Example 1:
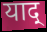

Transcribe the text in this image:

याद्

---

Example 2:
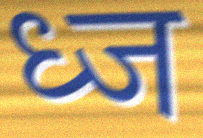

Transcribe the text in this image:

ध्ज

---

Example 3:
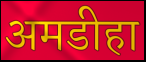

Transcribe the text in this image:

अमडीहा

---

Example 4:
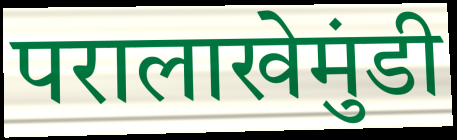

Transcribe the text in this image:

परालाखेमुंडी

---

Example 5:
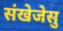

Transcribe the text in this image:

संखेजेसु